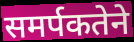
समर्पकतेने